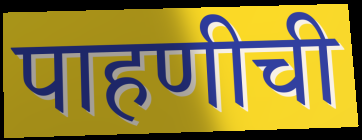
पाहणीची